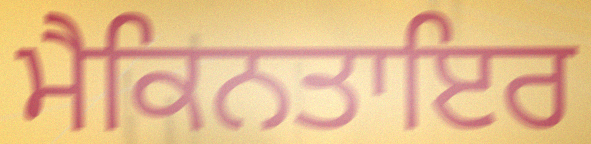
ਮੈਕਿਨਤਾਇਰ